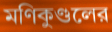
মণিকুণ্ডলের